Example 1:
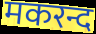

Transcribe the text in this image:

मकरन्द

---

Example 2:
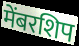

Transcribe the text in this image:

मेंबरशिप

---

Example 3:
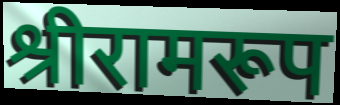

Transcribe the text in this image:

श्रीरामरूप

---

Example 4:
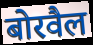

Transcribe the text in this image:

बोरवैल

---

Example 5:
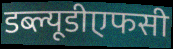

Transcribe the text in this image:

डब्ल्यूडीएफसी